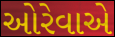
ઓરેવાએ